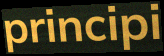
principi